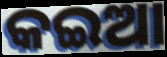
କଇଆ